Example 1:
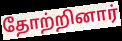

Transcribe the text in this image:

தோற்றினார்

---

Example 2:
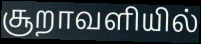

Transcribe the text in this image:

சூறாவளியில்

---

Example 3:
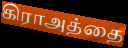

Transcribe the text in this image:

கிராஅத்தை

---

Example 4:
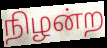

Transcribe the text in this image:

நிழன்ற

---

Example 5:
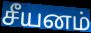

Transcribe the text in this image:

சீயனம்